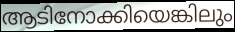
ആടിനോക്കിയെങ്കിലും